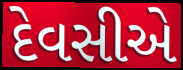
દેવસીએ